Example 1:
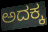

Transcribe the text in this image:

ಅದಕ್ಕ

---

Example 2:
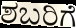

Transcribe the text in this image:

ಶಬರಿಗೆ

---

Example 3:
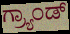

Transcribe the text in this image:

ಗ್ರ್ಯಾಂಡ್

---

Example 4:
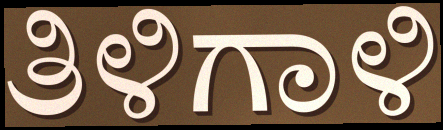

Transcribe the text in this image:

ತಿಳಿಗಾಳಿ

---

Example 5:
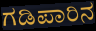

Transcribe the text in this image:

ಗಡಿಪಾರಿನ